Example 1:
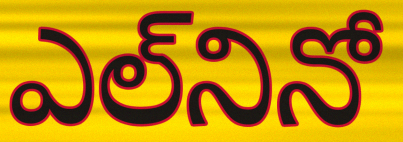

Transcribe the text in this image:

ఎల్‌నినో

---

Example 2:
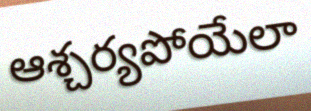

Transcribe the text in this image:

ఆశ్చర్యపోయేలా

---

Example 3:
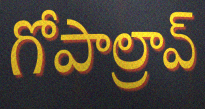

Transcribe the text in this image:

గోపాల్రావ్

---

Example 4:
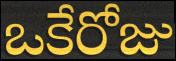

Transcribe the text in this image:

ఒకేరోజు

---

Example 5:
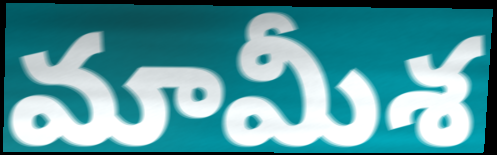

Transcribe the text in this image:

మామీశ